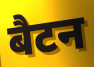
बैटन